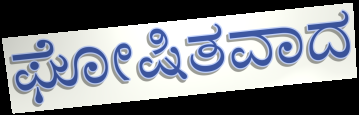
ಘೋಷಿತವಾದ